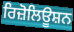
ਰਿਜ਼ੋਲਿਊਸ਼ਨ